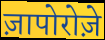
ज़ापोरोज़े